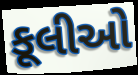
કૂલીઓ